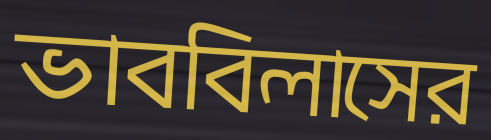
ভাববিলাসের